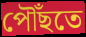
পৌঁছতে